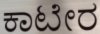
ಕಾಟೇರ